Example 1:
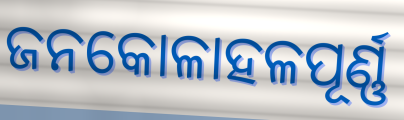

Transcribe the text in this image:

ଜନକୋଳାହଳପୂର୍ଣ୍ଣ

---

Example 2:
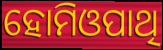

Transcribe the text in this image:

ହୋମିଓପାଥି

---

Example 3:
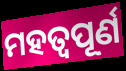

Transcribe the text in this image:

ମହତ୍ୱପୂର୍ଣ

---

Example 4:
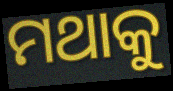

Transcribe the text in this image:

ମଥାକୁ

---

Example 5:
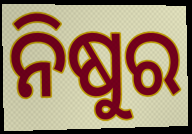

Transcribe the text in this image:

ନିଷୁର